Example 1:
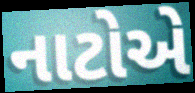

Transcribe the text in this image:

નાટોએ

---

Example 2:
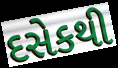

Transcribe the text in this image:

દસેકથી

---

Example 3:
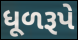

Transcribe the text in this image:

ધૂળરૂપે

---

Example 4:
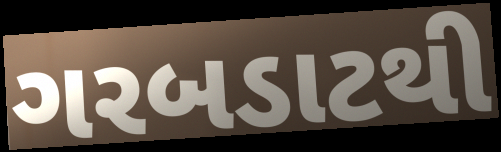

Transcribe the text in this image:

ગરબડાટથી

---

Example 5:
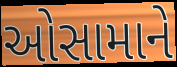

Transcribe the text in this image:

ઓસામાને